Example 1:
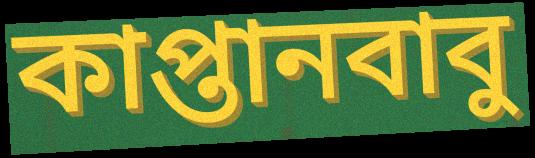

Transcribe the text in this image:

কাপ্তানবাবু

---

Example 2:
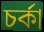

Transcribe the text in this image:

চর্কা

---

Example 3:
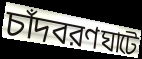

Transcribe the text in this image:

চাঁদবরণঘাটে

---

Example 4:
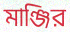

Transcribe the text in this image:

মাঞ্জির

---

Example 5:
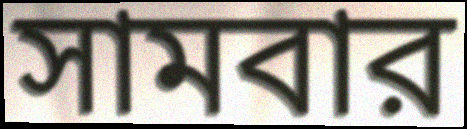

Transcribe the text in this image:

সামবার